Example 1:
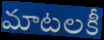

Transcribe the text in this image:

మాటలకీ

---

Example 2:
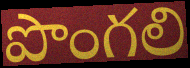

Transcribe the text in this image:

పొంగలి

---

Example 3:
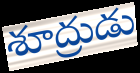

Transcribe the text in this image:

శూద్రుడు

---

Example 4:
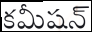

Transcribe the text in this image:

కమీషన్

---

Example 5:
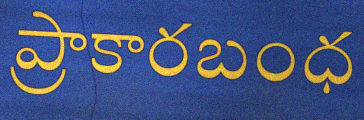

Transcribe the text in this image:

ప్రాకారబంధ